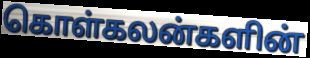
கொள்கலன்களின்